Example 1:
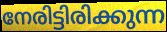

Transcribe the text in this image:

നേരിട്ടിരിക്കുന്ന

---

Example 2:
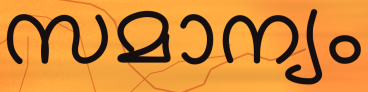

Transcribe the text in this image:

സമാന്യം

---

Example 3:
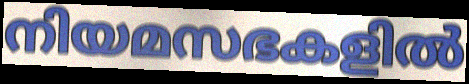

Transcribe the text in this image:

നിയമസഭകളിൽ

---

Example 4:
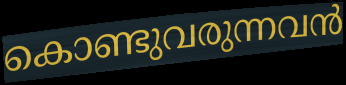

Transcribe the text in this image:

കൊണ്ടുവരുന്നവൻ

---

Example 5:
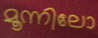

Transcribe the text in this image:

മൂന്നിലോ